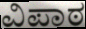
ವಿಪಾಠ